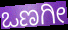
ಒಣಗೀ